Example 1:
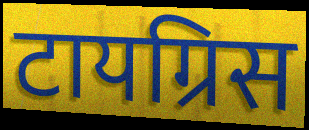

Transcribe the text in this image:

टायग्रिस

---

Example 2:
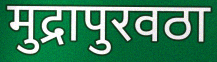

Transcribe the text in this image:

मुद्रापुरवठा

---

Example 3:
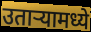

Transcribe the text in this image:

उतार्‍यामध्ये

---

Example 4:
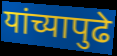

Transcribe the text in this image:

यांच्यापुढे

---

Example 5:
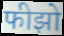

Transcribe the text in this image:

फीझो